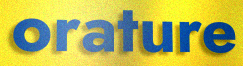
orature